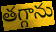
తగ్గాను